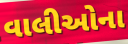
વાલીઓના